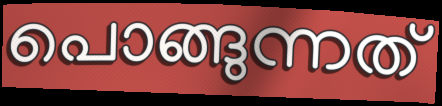
പൊങ്ങുന്നത്